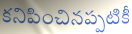
కనిపించినప్పటికీ